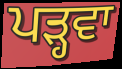
ਪੜ੍ਹਵਾ